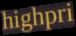
highpri